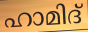
ഹാമിദ്